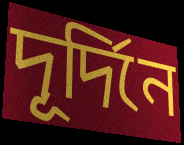
দূর্দিনে